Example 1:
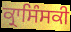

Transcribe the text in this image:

ਕ੍ਰਾਸਿੰਸਕੀ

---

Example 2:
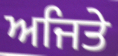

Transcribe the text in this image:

ਅਜਿਤੇ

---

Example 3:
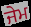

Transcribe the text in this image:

ਜੇਮ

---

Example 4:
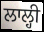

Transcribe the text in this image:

ਲਾਲ੍ਹੀ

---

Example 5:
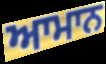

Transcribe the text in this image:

ਆਮਾਨ